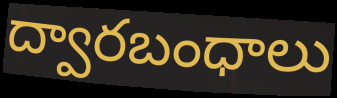
ద్వారబంధాలు